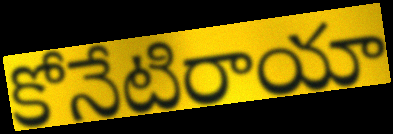
కోనేటిరాయా